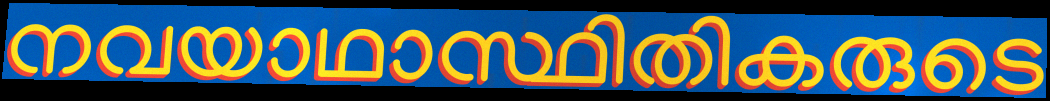
നവയാഥാസ്ഥിതികരുടെ